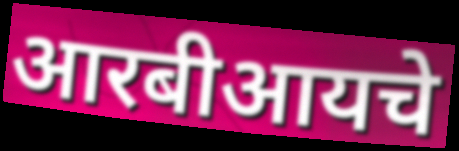
आरबीआयचे